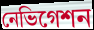
নেভিগেশন